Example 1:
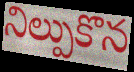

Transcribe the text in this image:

నిల్పుకొన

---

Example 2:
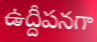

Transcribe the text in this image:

ఉద్దీపనగా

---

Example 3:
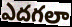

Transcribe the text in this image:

ఎదగలా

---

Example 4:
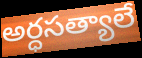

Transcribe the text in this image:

అర్ధసత్యాలే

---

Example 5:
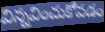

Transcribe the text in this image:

విన్నవించుకోవడం